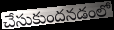
చేసుకుందనడంలో